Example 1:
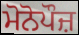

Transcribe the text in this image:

ਮੋਨੋਪੌਜ਼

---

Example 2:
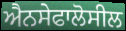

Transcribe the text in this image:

ਐਨਸੇਫਾਲੋਸੀਲ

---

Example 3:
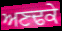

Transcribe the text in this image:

ਅਣਢਕੇ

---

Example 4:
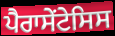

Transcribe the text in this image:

ਪੈਰਾਸੇਂਟੇਸਿਸ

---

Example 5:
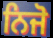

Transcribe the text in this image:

ਨਿਜੋ